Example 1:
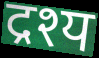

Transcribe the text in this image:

द्रश्य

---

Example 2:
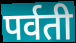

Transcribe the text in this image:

पर्वती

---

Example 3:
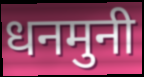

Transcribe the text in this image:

धनमुनी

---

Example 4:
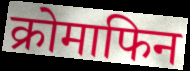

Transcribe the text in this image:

क्रोमाफिन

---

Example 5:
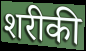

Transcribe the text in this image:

शरीकी